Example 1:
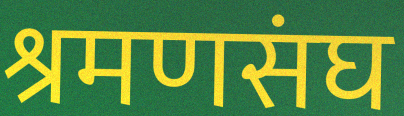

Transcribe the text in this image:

श्रमणसंघ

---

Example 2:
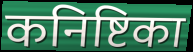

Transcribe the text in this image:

कनिष्टिका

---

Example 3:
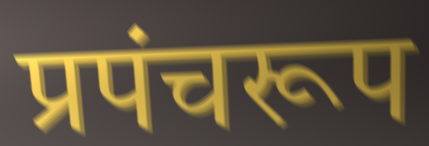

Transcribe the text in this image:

प्रपंचरूप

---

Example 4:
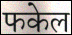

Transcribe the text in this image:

फकेल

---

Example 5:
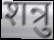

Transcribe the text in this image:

शन्रु